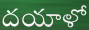
దయాళో